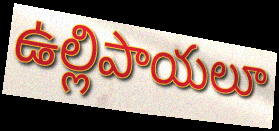
ఉల్లిపాయలూ